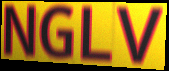
NGLV